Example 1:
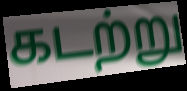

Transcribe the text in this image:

கடற்று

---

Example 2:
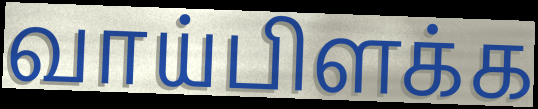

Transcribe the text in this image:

வாய்பிளக்க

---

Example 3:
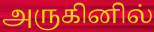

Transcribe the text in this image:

அருகினில்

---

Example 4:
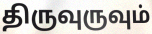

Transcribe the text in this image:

திருவுருவும்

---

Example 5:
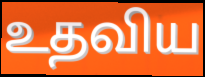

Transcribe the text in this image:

உதவிய